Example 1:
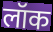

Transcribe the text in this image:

लॉक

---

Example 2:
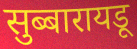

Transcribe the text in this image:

सुब्बारायडू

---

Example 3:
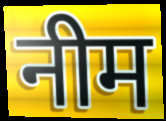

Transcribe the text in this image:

नीम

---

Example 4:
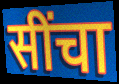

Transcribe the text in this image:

सींचा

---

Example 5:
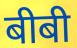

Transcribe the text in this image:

बीबी